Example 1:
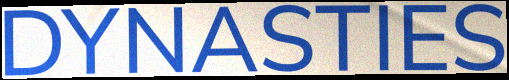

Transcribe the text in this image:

DYNASTIES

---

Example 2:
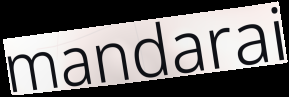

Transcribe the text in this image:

mandarai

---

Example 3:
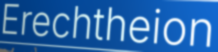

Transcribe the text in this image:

Erechtheion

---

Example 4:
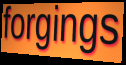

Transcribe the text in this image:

forgings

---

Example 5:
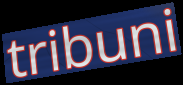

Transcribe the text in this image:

tribuni